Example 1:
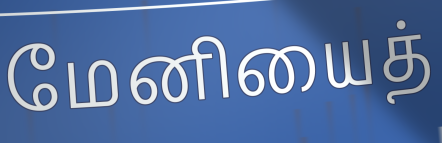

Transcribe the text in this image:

மேனியைத்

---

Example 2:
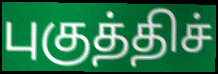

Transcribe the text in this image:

புகுத்திச்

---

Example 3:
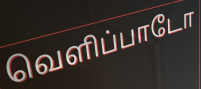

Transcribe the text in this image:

வெளிப்பாடோ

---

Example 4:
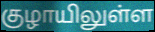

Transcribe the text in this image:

குழாயிலுள்ள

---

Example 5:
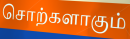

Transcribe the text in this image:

சொற்களாகும்